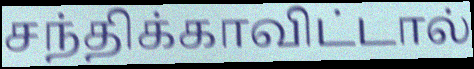
சந்திக்காவிட்டால்